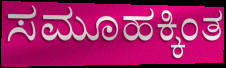
ಸಮೂಹಕ್ಕಿಂತ